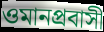
ওমানপ্রবাসী